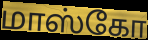
மாஸ்கோ